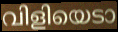
വിളിയെടാ